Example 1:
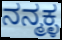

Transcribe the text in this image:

ನನ್ಮಕ್ಳ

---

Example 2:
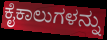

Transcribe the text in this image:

ಕೈಕಾಲುಗಳನ್ನು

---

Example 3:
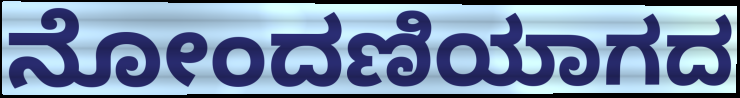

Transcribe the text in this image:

ನೋಂದಣಿಯಾಗದ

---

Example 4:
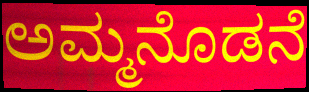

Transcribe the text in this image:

ಅಮ್ಮನೊಡನೆ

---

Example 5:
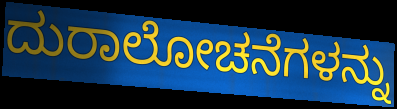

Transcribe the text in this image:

ದುರಾಲೋಚನೆಗಳನ್ನು